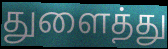
துளைத்து